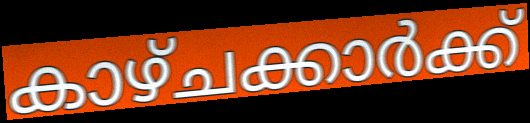
കാഴ്ചക്കാർക്ക്